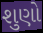
શુણો